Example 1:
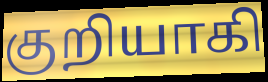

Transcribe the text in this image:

குறியாகி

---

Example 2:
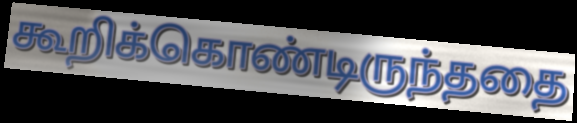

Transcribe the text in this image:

கூறிக்கொண்டிருந்ததை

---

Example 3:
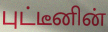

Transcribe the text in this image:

புட்டீனின்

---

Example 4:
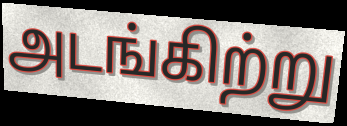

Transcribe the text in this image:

அடங்கிற்று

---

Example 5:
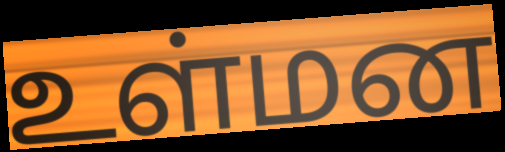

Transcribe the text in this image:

உள்மன